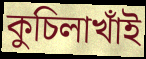
কুচিলাখাঁই